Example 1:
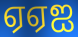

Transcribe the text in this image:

ஏஏஐ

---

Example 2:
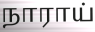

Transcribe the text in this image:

நாராய்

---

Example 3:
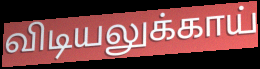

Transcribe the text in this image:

விடியலுக்காய்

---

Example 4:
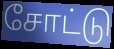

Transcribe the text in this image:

சோட்டு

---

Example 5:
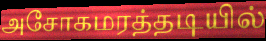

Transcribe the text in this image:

அசோகமரத்தடியில்